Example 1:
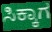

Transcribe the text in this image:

ಸಿಕ್ಕಾಗ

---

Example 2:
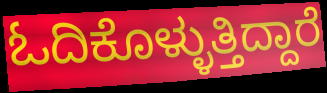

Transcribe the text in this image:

ಓದಿಕೊಳ್ಳುತ್ತಿದ್ದಾರೆ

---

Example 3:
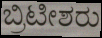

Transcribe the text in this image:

ಬ್ರಿಟೀಶರು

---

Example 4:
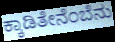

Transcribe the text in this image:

ಕ್ಕಾಡಿತೇನೆಂಬೆನು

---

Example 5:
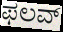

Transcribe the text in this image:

ಫಲವ್